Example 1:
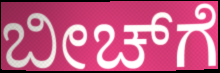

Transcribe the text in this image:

ಬೀಚ್‌ಗೆ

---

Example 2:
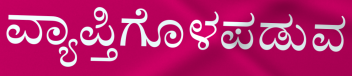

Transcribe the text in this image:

ವ್ಯಾಪ್ತಿಗೊಳಪಡುವ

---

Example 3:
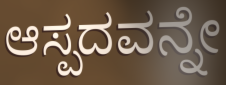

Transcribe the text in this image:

ಆಸ್ಪದವನ್ನೇ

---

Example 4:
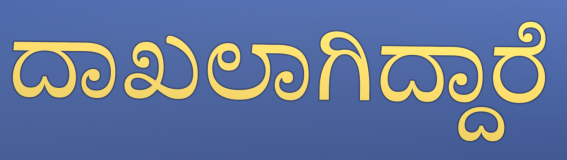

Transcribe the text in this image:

ದಾಖಲಾಗಿದ್ದಾರೆ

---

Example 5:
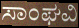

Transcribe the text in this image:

ಸಾಂಘವಿ